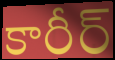
కారీర్